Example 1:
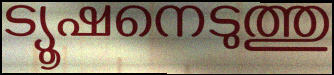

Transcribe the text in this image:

ട്യൂഷനെടുത്തു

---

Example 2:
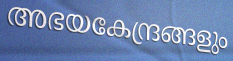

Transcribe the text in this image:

അഭയകേന്ദ്രങ്ങളും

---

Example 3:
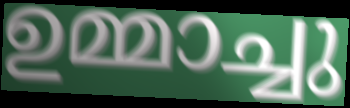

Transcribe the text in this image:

ഉമ്മാച്ചു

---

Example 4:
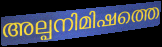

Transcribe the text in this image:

അല്പനിമിഷത്തെ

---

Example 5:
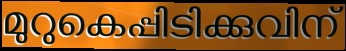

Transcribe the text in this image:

മുറുകെപ്പിടിക്കുവിന്